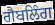
ਗੈਬਲਿੰਗ